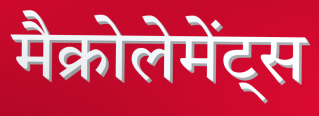
मैक्रोलेमेंट्स